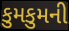
કુમકુમની